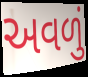
અવળું